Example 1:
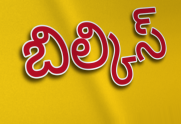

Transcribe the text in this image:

బిల్కిస్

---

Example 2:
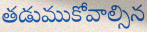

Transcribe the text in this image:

తడుముకోవాల్సిన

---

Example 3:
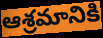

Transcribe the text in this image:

ఆశ్రమానికి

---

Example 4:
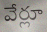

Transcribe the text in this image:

వేర్లూ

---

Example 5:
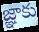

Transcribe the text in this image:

జ్ఞాకు